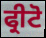
ਫ੍ਰੀਟੋ